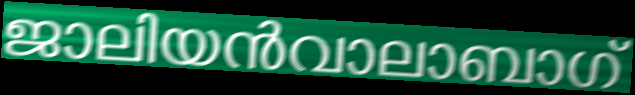
ജാലിയൻവാലാബാഗ്